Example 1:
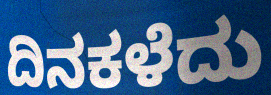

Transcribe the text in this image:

ದಿನಕಳೆದು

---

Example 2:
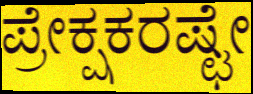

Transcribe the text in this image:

ಪ್ರೇಕ್ಷಕರಷ್ಟೇ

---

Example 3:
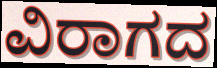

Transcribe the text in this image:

ವಿರಾಗದ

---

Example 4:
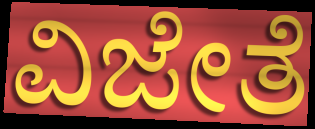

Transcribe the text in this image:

ವಿಜೇತೆ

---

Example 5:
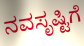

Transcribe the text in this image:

ನವಸೃಷ್ಟಿಗೆ